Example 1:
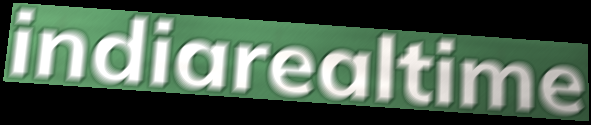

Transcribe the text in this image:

indiarealtime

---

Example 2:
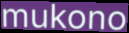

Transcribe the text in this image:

mukono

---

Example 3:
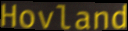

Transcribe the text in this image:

Hovland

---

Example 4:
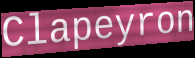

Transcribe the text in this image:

Clapeyron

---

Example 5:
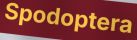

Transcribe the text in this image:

Spodoptera